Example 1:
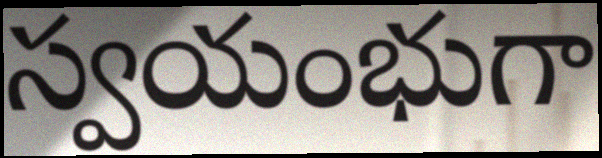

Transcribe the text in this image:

స్వయంభుగా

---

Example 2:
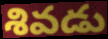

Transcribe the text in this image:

శివడు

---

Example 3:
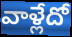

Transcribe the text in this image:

వాళ్లేదో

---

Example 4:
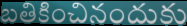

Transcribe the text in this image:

బతికించినందుకు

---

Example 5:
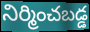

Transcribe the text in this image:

నిర్మించబడ్డ